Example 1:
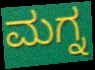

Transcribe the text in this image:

ಮಗ್ನ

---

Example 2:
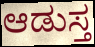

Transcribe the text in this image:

ಆಡುಸ್ತ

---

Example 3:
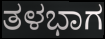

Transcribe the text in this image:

ತಳಭಾಗ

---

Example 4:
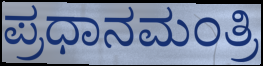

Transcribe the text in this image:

ಪ್ರಧಾನಮಂತ್ರಿ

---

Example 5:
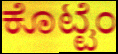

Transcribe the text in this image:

ಕೊಟ್ಟೆಂ